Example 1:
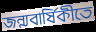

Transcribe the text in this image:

জন্মবাৰ্ষিকীতে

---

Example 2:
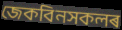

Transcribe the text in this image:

জেকবিনসকলৰ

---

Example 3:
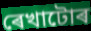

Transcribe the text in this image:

ৰেখাটোৰ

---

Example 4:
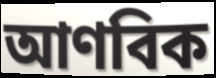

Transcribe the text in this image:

আণবিক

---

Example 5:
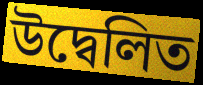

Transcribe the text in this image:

উদ্বেলিত